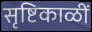
सृष्टिकाळीं